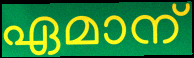
ഏമാന്